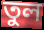
তুল